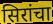
सिरांचा